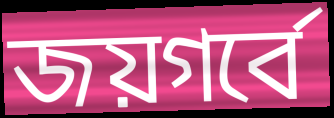
জয়গর্বে